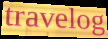
travelog